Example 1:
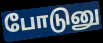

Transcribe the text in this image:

போடுனு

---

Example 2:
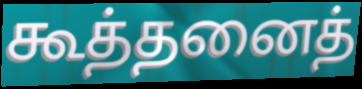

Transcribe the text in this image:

கூத்தனைத்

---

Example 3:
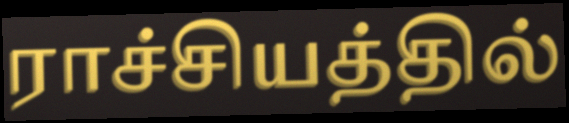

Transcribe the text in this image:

ராச்சியத்தில்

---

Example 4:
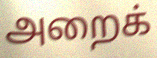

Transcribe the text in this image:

அறைக்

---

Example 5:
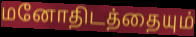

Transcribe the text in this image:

மனோதிடத்தையும்